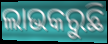
ଲାଭକରୁଛି